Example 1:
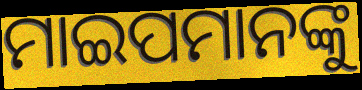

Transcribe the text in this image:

ମାଇପମାନଙ୍କୁ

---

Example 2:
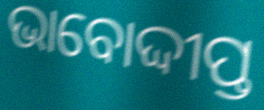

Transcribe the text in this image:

ଭାବୋଦ୍ଦୀପ୍ତ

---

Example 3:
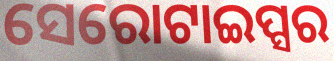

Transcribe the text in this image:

ସେରୋଟାଇପ୍ସର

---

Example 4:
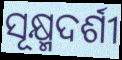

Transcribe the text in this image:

ସୂକ୍ଷ୍ମଦର୍ଶୀ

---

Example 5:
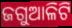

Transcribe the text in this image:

ଜଗୁଆଳିଟି